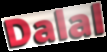
Dalal